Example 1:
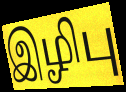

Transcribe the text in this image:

இழிபு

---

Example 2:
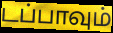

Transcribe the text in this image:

டப்பாவும்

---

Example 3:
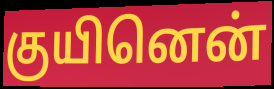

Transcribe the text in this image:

குயினென்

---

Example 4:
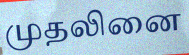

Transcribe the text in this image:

முதலினை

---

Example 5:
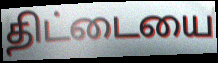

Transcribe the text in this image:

திட்டையை